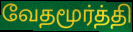
வேதமூர்த்தி